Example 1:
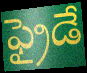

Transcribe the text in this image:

ఫ్రైడే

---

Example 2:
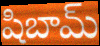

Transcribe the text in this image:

షిబామ్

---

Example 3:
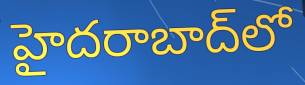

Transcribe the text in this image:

హైదరాబాద్‌లో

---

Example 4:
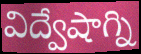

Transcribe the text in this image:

విద్వేషాగ్ని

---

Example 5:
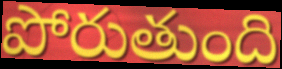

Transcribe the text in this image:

పోరుతుంది